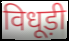
विधूड़ी